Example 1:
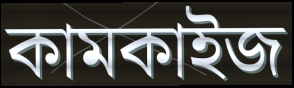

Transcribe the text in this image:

কামকাইজ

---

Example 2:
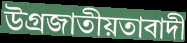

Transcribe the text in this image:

উগ্রজাতীয়তাবাদী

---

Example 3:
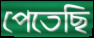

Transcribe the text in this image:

পেতেছি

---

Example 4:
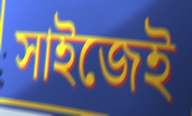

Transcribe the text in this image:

সাইজেই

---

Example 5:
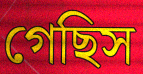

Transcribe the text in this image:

গেছিস